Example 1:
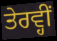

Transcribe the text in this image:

ਤੇਰਵ੍ਹੀਂ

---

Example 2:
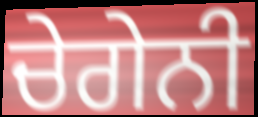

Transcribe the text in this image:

ਚੇਗੇਨੀ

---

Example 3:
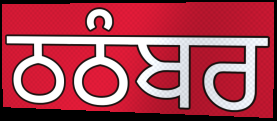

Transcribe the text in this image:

ਠਠੰਬਰ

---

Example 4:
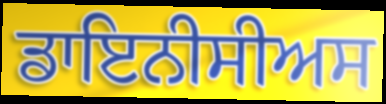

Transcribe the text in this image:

ਡਾਇਨੀਸੀਅਸ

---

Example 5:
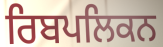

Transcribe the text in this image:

ਰਿਬਪਲਿਕਨ